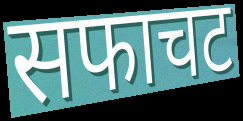
सफाचट